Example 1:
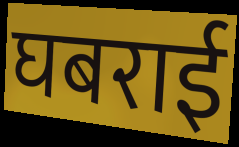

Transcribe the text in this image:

घबराई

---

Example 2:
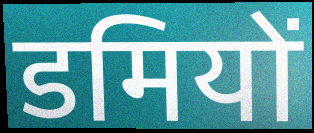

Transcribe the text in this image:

डमियों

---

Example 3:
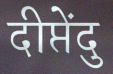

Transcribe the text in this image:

दीप्तेंदु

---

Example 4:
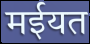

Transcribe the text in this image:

मईयत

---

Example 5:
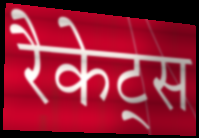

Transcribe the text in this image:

रैकेट्स